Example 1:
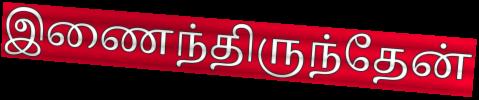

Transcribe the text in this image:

இணைந்திருந்தேன்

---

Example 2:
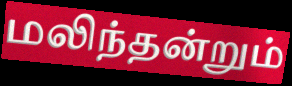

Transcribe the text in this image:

மலிந்தன்றும்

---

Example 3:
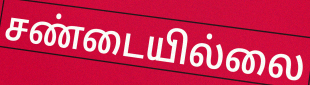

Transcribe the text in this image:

சண்டையில்லை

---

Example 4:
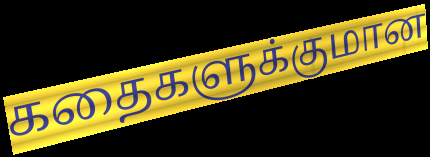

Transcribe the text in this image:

கதைகளுக்குமான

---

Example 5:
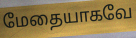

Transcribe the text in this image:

மேதையாகவே